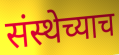
संस्थेच्याच